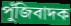
পুঁজিবাদক